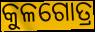
କୁଳଗୋତ୍ର